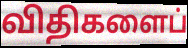
விதிகளைப்